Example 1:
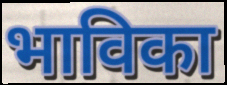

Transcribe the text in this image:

भाविका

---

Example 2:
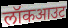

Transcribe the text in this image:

लॉकआउट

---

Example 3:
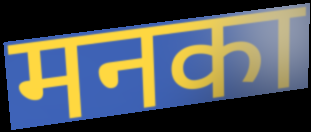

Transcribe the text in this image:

मनका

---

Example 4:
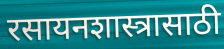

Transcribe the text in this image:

रसायनशास्त्रासाठी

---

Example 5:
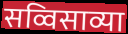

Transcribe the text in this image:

सव्विसाव्या